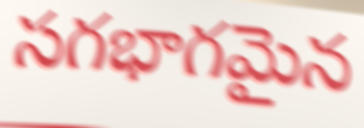
సగభాగమైన